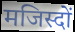
मजिस्दों